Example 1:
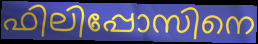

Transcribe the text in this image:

ഫിലിപ്പോസിനെ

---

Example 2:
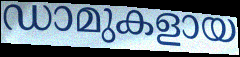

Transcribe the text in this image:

ഡാമുകളായ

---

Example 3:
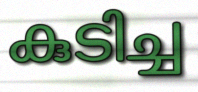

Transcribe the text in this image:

കുടിച്ച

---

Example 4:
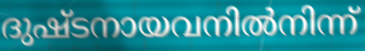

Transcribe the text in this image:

ദുഷ്ടനായവനിൽനിന്ന്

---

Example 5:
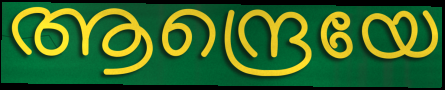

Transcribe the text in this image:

ആന്ദ്രെയേ